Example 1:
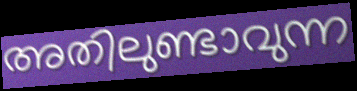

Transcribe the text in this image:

അതിലുണ്ടാവുന്ന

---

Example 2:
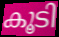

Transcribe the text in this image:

കൂടി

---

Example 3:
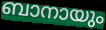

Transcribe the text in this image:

ബാനായും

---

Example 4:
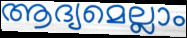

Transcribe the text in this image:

ആദ്യമെല്ലാം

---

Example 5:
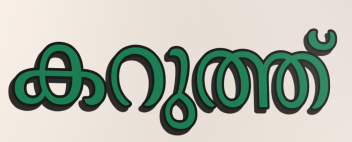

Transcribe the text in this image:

കറുത്ത്